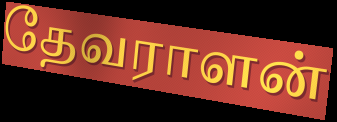
தேவராளன்